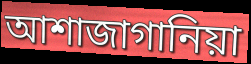
আশাজাগানিয়া